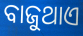
ବାଜୁଥାଏ